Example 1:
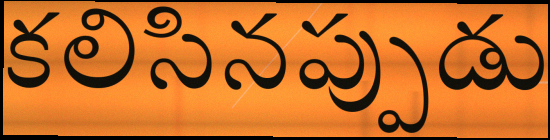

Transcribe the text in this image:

కలిసినప్పుడు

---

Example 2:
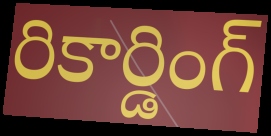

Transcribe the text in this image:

రికార్డింగ్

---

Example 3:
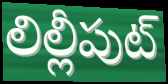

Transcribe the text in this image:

లిల్లీపుట్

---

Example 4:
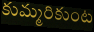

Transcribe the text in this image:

కుమ్మరికుంట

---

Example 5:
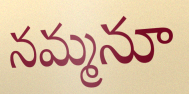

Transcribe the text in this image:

నమ్మనూ